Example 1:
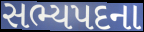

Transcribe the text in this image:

સભ્યપદના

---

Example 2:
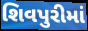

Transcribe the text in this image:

શિવપુરીમાં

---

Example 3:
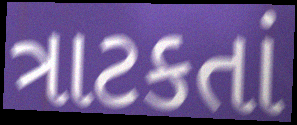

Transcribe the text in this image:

ત્રાટકતાં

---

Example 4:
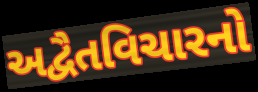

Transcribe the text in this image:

અદ્વૈતવિચારનો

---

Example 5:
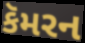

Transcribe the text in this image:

કૅમરન